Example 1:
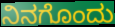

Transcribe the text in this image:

ನಿನಗೊಂದು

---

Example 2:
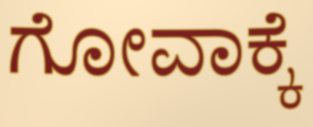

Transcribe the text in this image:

ಗೋವಾಕ್ಕೆ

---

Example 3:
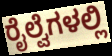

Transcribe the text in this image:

ರೈಲ್ವೆಗಳಲ್ಲಿ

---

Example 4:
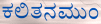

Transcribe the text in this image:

ಕಲಿತನಮುಂ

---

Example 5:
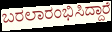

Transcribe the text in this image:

ಬರಲಾರಂಭಿಸಿದ್ದಾರೆ